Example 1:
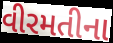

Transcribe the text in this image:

વીરમતીના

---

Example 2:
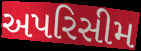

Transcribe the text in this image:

અપરિસીમ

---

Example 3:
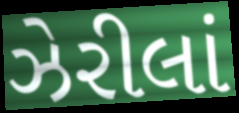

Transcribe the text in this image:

ઝેરીલાં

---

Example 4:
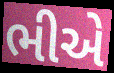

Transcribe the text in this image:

ભીએ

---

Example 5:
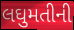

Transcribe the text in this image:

લઘુમતીની